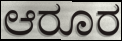
ಆರೂರ